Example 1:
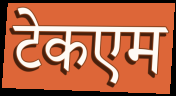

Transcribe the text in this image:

टेकएम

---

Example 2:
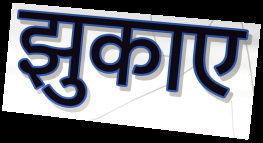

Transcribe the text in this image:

झुकाए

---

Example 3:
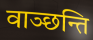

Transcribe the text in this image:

वाञ्छन्ति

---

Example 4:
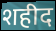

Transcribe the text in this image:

शहीद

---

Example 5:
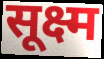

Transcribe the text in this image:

सूक्ष्म